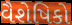
વૈશેષિકો